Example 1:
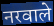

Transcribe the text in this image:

नरवाले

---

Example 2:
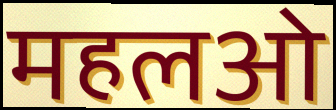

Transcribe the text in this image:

महलओ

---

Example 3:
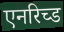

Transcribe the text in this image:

एनरिच्ड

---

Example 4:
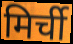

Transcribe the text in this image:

मिर्ची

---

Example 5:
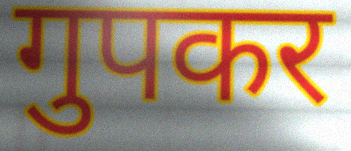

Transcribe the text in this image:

गुपकर